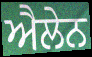
ਐਲੇਨ